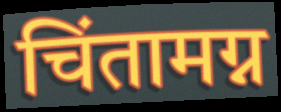
चिंतामग्न